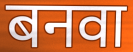
बनवा